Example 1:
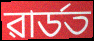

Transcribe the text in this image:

ৱাৰ্ডত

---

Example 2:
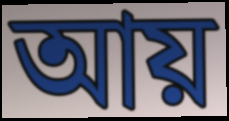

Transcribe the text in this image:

আয়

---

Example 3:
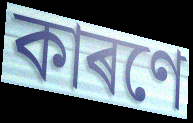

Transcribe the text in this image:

কাৰণে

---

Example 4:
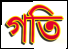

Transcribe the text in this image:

গতি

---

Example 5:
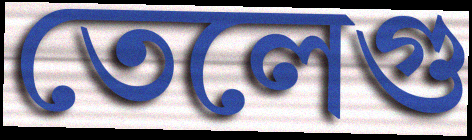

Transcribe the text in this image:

তেলেগু